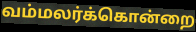
வம்மலர்க்கொன்றை